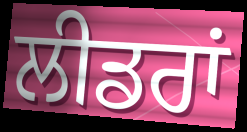
ਲੀਡਰਾਂ